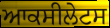
ਆਕਸੀਲੇਟਸ